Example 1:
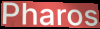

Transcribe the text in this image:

Pharos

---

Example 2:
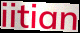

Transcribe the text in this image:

iitian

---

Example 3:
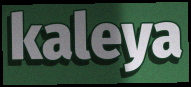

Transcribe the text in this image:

kaleya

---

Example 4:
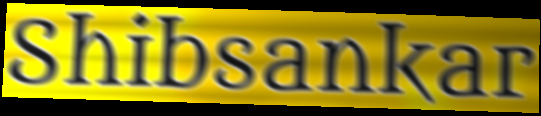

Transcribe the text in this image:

Shibsankar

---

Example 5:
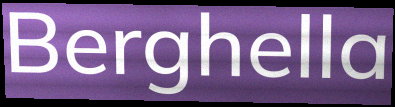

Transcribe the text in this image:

Berghella